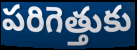
పరిగెత్తుకు